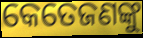
କେତେଜଣଙ୍କୁ